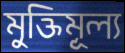
মুক্তিমূল্য